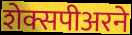
शेक्सपीअरने